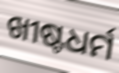
ଖୀଷ୍ଟଧର୍ମ